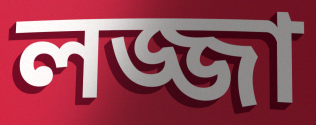
লজ্জা